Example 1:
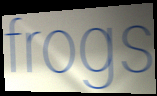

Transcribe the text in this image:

frogs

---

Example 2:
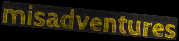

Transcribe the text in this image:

misadventures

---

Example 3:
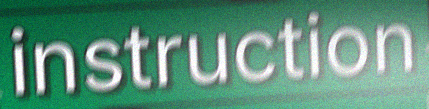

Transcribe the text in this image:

instruction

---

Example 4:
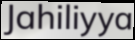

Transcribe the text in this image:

Jahiliyya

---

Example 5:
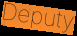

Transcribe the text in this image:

Deputy